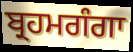
ਬ੍ਰਹਮਗੰਗਾ